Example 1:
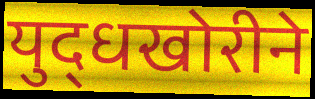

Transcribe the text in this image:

युद्धखोरीने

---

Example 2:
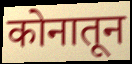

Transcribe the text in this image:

कोनातून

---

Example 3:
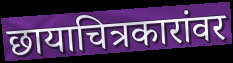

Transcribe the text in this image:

छायाचित्रकारांवर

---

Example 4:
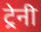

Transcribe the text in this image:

ट्रेनी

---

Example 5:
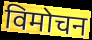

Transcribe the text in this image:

विमोचन